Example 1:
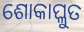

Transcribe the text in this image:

ଶୋକାପ୍ଳୁତ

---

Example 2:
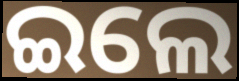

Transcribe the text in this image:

ଇଲେ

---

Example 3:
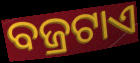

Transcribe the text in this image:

ବଜ୍ରଟାଏ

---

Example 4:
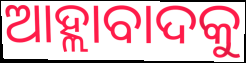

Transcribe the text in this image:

ଆହ୍ଲାବାଦକୁ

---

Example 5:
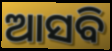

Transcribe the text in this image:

ଆସବି